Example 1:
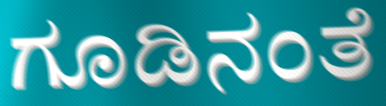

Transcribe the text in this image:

ಗೂಡಿನಂತೆ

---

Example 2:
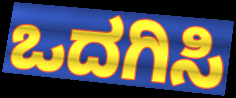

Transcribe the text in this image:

ಒದಗಿಸಿ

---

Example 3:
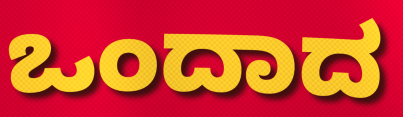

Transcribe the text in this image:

ಒಂದಾದ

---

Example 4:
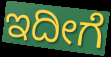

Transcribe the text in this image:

ಇದೀಗೆ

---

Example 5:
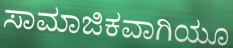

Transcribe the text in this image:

ಸಾಮಾಜಿಕವಾಗಿಯೂ